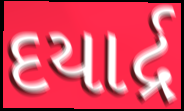
દયાર્દ્ર